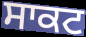
ਸਾਕਟ